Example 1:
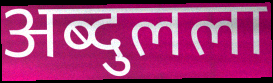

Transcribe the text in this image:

अब्दुलला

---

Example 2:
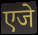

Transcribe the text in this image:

एजे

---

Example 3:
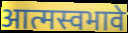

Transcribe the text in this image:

आत्मस्वभावे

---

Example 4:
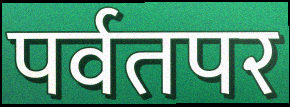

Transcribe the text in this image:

पर्वतपर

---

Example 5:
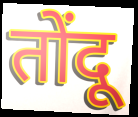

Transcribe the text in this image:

तोंदू